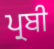
ਪ੍ਰਬੀ